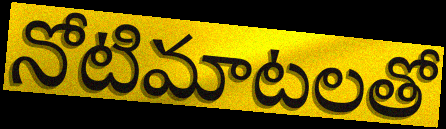
నోటిమాటలతో